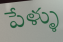
పేళ్ళు